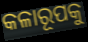
କଳାରୂପକୁ